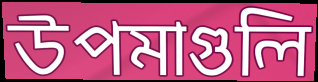
উপমাগুলি